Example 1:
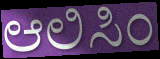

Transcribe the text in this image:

ಆಲಿಸಿಂ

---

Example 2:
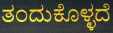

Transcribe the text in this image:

ತಂದುಕೊಳ್ಳದೆ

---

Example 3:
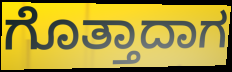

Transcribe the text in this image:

ಗೊತ್ತಾದಾಗ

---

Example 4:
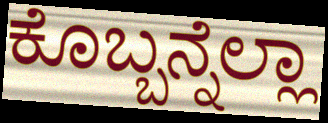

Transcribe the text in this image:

ಕೊಬ್ಬನ್ನೆಲ್ಲಾ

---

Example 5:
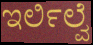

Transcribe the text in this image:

ಇರ್ಲಿಲ್ವೆ